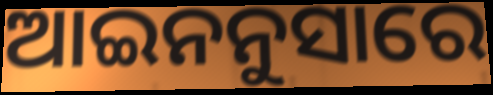
ଆଇନନୁସାରେ